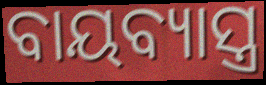
ବାୟବ୍ୟାସ୍ତ୍ର